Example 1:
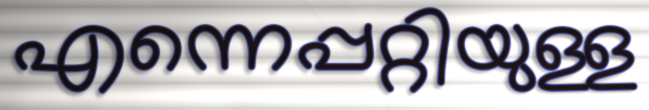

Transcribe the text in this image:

എന്നെപ്പറ്റിയുള്ള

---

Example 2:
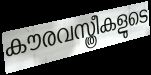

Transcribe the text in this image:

കൗരവസ്ത്രീകളുടെ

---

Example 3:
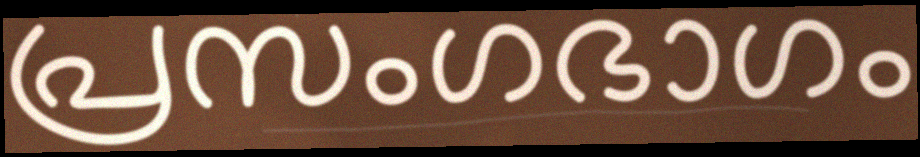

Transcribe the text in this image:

പ്രസംഗഭാഗം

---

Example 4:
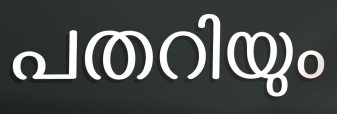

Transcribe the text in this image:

പതറിയും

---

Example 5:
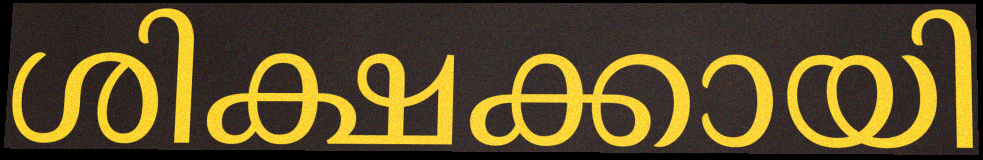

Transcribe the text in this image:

ശിക്ഷക്കായി